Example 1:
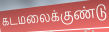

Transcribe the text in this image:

கடமலைக்குண்டு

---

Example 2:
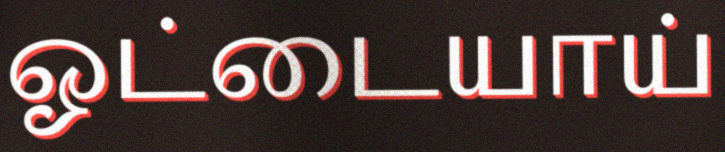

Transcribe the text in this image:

ஓட்டையாய்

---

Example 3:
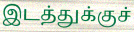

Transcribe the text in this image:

இடத்துக்குச்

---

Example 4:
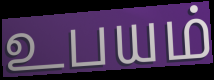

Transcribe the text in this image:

உபயம்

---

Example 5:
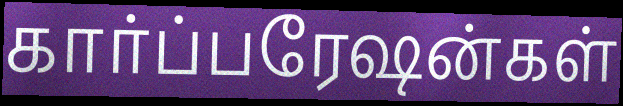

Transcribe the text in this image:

கார்ப்பரேஷன்கள்